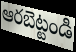
ఆరబెట్టండి